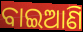
ବାଇଆଣି